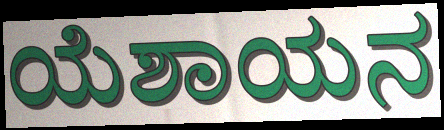
ಯೆಶಾಯನ